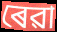
ৰেৱা